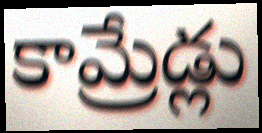
కామ్రేడ్లు